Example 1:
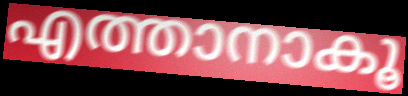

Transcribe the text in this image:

എത്താനാകൂ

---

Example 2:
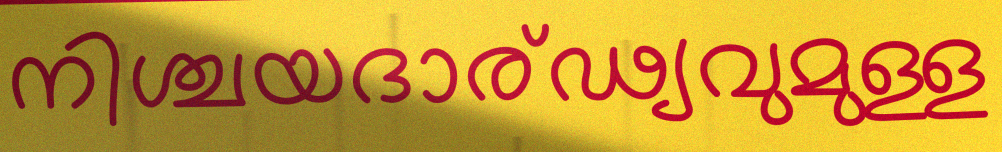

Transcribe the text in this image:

നിശ്ചയദാര്ഢ്യവുമുള്ള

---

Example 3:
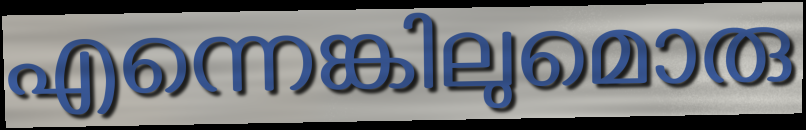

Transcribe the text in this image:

എന്നെങ്കിലുമൊരു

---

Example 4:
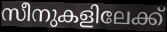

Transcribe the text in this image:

സീനുകളിലേക്ക്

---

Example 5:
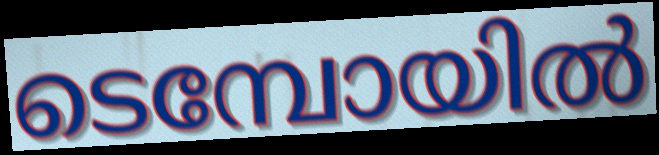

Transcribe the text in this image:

ടെമ്പോയിൽ